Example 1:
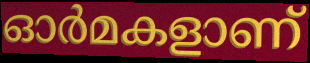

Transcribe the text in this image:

ഓർമകളാണ്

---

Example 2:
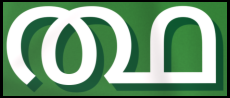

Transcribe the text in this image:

ത്ഥ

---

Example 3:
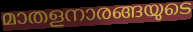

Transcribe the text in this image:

മാതളനാരങ്ങയുടെ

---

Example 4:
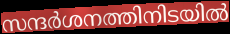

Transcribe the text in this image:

സന്ദർശനത്തിനിടയിൽ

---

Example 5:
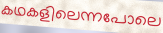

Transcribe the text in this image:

കഥകളിലെന്നപോലെ